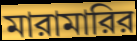
মারামারির